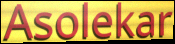
Asolekar